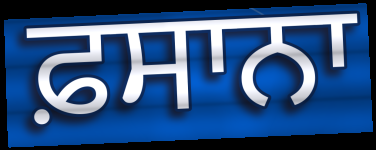
ਫ਼ਸਾਨਾ